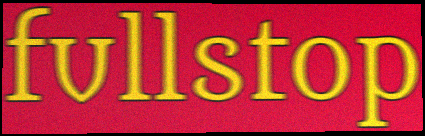
fullstop